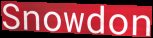
Snowdon